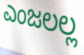
ಎಂಜಲಲ್ಲ